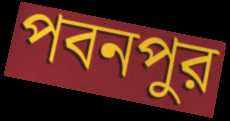
পবনপুর